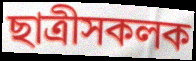
ছাত্ৰীসকলক